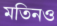
মতিনও